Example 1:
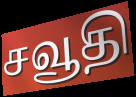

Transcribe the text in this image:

சவூதி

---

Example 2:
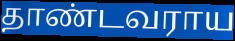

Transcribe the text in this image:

தாண்டவராய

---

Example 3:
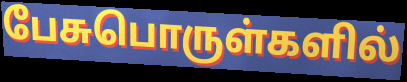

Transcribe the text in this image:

பேசுபொருள்களில்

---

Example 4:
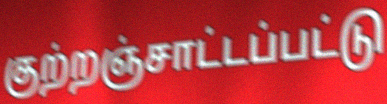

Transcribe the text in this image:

குற்றஞ்சாட்டப்பட்டு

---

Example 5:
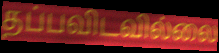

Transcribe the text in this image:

தப்பவிடவில்லை